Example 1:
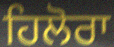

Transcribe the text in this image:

ਹਿਲੋਰਾ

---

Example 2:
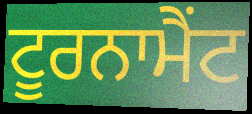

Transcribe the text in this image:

ਟੂਰਨਾਮੈਂਟ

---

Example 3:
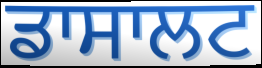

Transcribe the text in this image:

ਡਾਸਾਲਟ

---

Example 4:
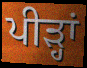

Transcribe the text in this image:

ਪੀੜ੍ਹਾਂ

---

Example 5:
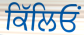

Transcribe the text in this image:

ਕਿੱਲਿਓਂ